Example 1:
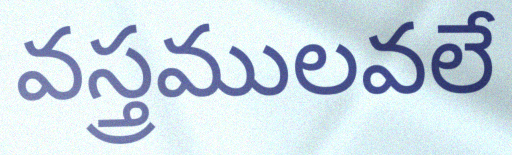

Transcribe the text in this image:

వస్త్రములవలే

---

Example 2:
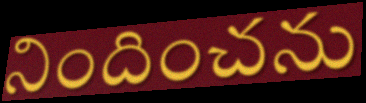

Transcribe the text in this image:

నిందించను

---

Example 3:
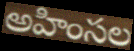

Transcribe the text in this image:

అహింసల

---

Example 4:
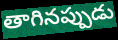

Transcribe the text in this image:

తాగినప్పుడు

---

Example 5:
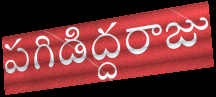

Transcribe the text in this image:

పగిడిద్దరాజు